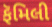
ફૅમિલી